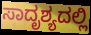
ಸಾದೃಶ್ಯದಲ್ಲಿ